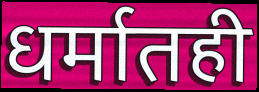
धर्मातही